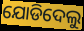
ଯୋଡିଦେଲୁ